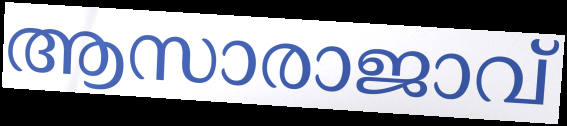
ആസാരാജാവ്